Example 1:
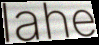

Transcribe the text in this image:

lahe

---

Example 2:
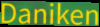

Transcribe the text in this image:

Daniken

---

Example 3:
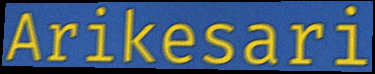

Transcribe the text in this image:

Arikesari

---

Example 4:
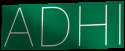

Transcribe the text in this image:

ADHI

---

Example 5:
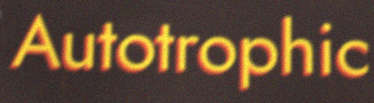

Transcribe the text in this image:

Autotrophic